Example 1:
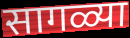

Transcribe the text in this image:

सागळ्या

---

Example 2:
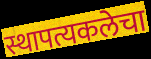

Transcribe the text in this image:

स्थापत्यकलेचा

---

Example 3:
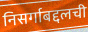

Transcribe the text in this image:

निसर्गाबद्दलची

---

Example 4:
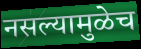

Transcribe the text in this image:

नसल्यामुळेच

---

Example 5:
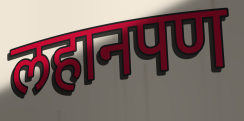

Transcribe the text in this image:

लहानपण